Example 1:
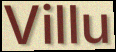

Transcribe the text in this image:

Villu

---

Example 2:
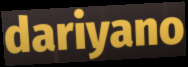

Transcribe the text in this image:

dariyano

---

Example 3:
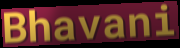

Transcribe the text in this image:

Bhavani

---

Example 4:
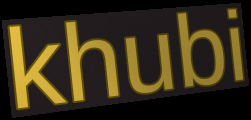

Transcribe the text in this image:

khubi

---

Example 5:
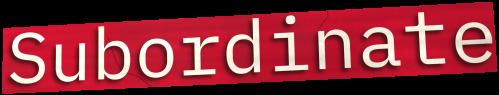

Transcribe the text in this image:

Subordinate